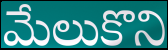
మేలుకొని